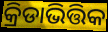
କ୍ରିଡାଭିତ୍ତିକ